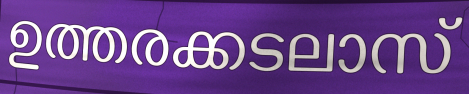
ഉത്തരക്കടലാസ്